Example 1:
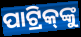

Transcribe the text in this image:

ପାଟ୍ରିକ୍‌ଙ୍କୁ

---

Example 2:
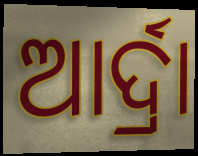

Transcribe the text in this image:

ଆର୍ଦ୍ରା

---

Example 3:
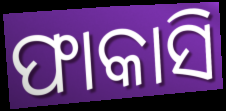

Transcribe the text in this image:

ଫାକାସି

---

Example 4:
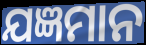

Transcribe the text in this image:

ଯଜ୍ଞମାନ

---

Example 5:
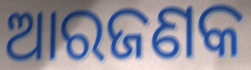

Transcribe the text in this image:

ଆରଜଣକ